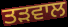
ਤੜਵਾਲ